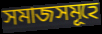
সমাজসমূহে